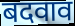
बदवाव